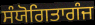
ਸੰਯੋਗਿਤਾਗੰਜ